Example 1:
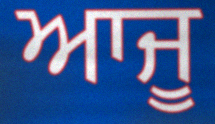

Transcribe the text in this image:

ਆਜੂ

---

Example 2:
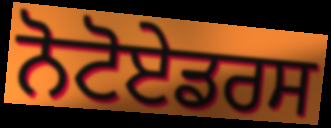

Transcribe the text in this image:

ਨੋਟੋਏਡਰਸ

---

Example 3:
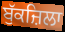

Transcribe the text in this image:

ਬੁੱਕਜ਼ਿਲਾ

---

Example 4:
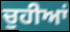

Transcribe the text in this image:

ਚੁਹੀਆਂ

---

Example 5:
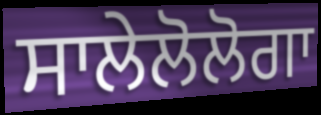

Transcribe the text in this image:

ਸਾਲੇਲੋਲੋਗਾ